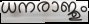
ധനരാജും